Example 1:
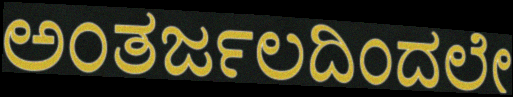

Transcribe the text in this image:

ಅಂತರ್ಜಲದಿಂದಲೇ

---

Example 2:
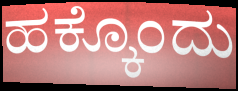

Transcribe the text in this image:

ಹಕ್ಕೊಂದು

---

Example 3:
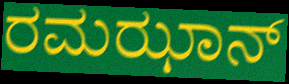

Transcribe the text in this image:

ರಮಝಾನ್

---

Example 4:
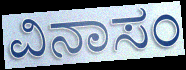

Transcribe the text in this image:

ವಿನಾಸಂ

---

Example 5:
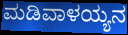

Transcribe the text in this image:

ಮಡಿವಾಳಯ್ಯನ